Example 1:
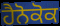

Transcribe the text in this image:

ਹੈਨੋਕੋਕ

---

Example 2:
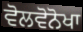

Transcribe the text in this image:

ਵੋਲਵੋਨੋਖਾ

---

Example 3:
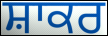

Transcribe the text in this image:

ਸ਼ਾਕਰ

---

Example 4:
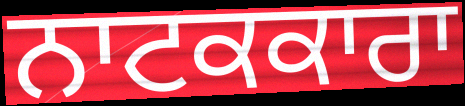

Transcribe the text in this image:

ਨਾਟਕਕਾਰਾ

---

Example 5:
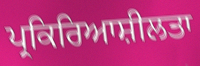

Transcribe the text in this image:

ਪ੍ਰਕਿਰਿਆਸ਼ੀਲਤਾ